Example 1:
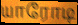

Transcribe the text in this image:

யாரோடி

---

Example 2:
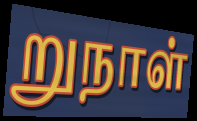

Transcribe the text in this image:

றுநாள்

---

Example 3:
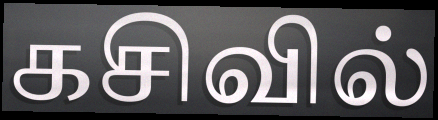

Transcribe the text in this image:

கசிவில்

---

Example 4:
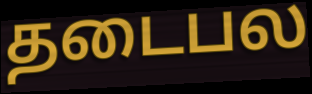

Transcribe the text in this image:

தடைபல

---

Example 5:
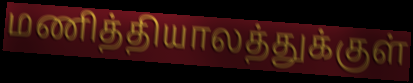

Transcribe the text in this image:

மணித்தியாலத்துக்குள்